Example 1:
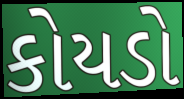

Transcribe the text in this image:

કોયડો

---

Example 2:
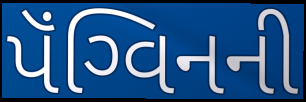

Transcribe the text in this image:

પૅંગ્વિનની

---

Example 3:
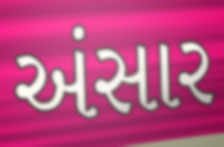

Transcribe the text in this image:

અંસાર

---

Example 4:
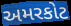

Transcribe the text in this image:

અમરકોટ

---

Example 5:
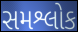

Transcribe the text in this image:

સમશ્લોક